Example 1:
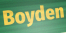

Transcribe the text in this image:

Boyden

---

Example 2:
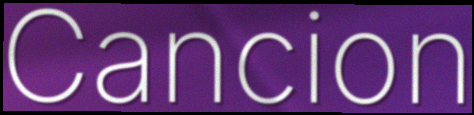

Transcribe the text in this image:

Cancion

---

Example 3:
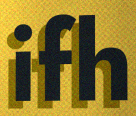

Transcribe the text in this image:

ifh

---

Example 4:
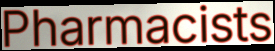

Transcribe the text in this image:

Pharmacists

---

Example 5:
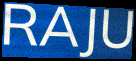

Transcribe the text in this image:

RAJU